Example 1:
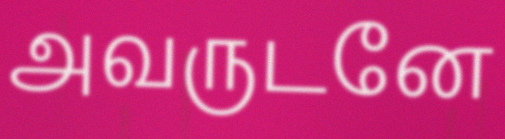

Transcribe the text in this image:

அவருடனே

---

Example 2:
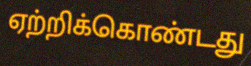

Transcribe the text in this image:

ஏற்றிக்கொண்டது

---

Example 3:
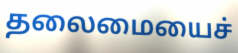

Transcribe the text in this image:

தலைமையைச்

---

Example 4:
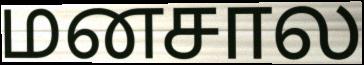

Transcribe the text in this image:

மனசால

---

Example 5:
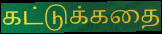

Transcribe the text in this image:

கட்டுக்கதை